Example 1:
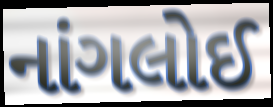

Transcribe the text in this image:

નાંગલોઈ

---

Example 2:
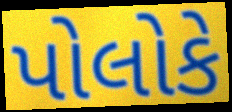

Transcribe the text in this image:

પોલોકે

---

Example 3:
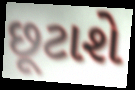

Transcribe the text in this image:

છૂટાશે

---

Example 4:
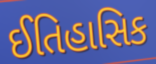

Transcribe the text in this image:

ઈતિહાસિક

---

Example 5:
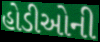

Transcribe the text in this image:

હોડીઓની